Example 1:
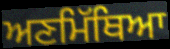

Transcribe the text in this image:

ਅਣਮਿੱਥਿਆ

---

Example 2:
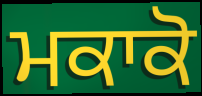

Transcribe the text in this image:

ਮਕਾਕੋ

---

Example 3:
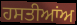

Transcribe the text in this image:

ਹਸਤੀਆਂਅ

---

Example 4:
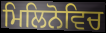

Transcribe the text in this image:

ਮਿਲਿਨੋਵਿਚ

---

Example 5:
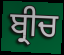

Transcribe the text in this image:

ਬ੍ਰੀਚ